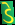
ડે